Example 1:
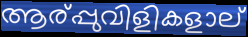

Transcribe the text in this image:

ആര്പ്പുവിളികളാല്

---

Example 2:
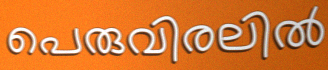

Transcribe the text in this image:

പെരുവിരലിൽ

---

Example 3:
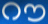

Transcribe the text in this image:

റൗ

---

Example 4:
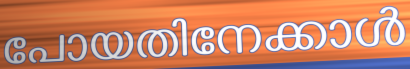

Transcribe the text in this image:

പോയതിനേക്കാൾ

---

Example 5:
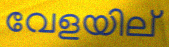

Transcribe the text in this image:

വേളയില്